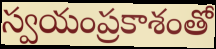
స్వయంప్రకాశంతో